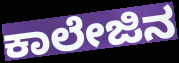
ಕಾಲೇಜಿನ